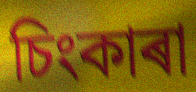
চিংকাৰা